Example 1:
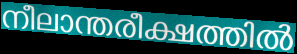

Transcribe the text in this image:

നീലാന്തരീക്ഷത്തിൽ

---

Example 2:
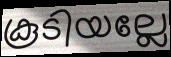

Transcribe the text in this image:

കൂടിയല്ലേ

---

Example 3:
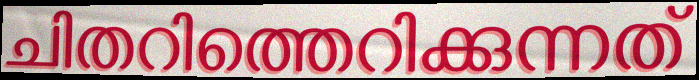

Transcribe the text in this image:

ചിതറിത്തെറിക്കുന്നത്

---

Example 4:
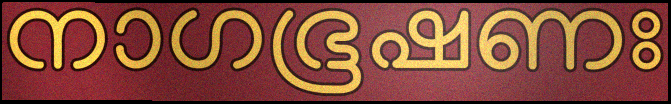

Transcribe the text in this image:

നാഗഭൂഷണഃ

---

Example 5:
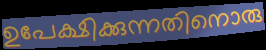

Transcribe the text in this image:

ഉപേക്ഷിക്കുന്നതിനൊരു